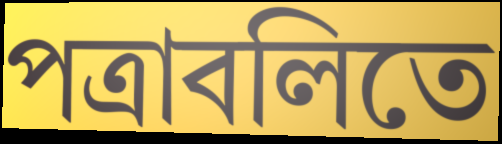
পত্রাবলিতে